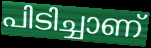
പിടിച്ചാണ്